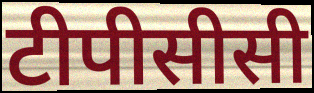
टीपीसीसी